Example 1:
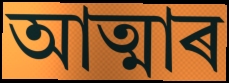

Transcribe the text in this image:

আত্মাৰ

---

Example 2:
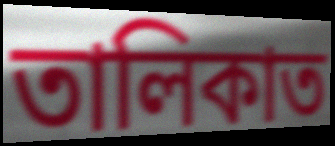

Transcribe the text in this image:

তালিকাত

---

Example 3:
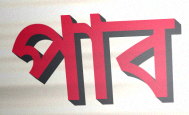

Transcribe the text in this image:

পাব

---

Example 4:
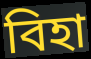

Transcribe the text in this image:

বিহা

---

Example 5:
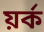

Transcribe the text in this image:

য়ৰ্ক